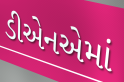
ડીએનએમાં